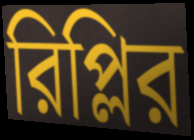
রিপ্লির